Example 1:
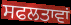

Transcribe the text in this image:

ਸਫਲਤਾਵਾਂ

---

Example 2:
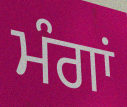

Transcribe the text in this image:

ਮੰਗਾਂ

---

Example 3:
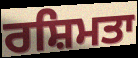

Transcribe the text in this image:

ਰਸ਼ਿਮਤਾ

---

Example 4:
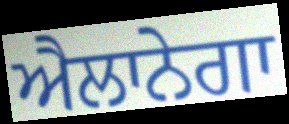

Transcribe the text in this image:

ਐਲਾਨੇਗਾ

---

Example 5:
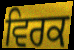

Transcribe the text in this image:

ਵਿਰਕ